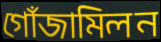
গোঁজামিলন